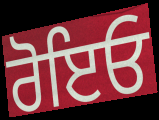
ਰੋਇਓ